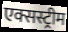
एक्सस्ट्रीम